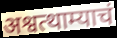
अश्वत्थाम्याचं